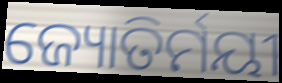
ଜ୍ୟୋତିର୍ମୟୀ